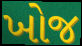
ખોજ